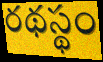
రథస్థం